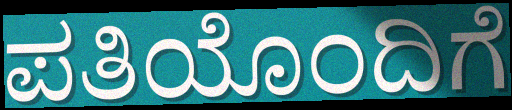
ಪತಿಯೊಂದಿಗೆ